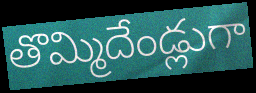
తొమ్మిదేండ్లుగా